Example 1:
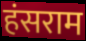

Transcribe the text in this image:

हंसराम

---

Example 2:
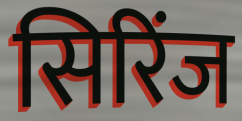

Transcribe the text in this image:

सिरिंज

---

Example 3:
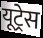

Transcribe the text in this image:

यूट्रेस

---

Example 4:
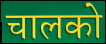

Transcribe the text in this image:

चालको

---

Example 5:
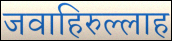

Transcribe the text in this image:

जवाहिरुल्लाह